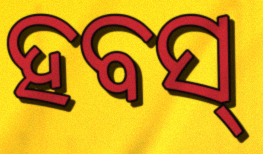
ହବସ୍